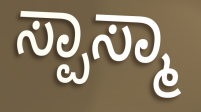
ಸ್ಪಾಸ್ಮಾ